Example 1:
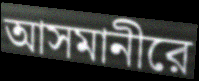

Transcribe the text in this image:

আসমানীরে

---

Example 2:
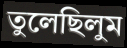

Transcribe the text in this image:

তুলেছিলুম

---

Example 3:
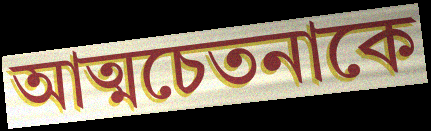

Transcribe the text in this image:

আত্মচেতনাকে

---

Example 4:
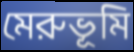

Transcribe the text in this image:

মেরুভূমি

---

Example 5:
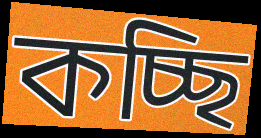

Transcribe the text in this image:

কচ্ছি